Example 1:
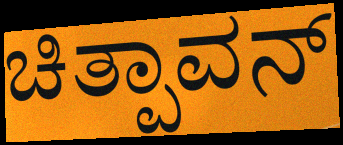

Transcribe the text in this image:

ಚಿತ್ಪಾವನ್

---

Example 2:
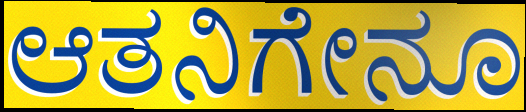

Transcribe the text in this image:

ಆತನಿಗೇನೂ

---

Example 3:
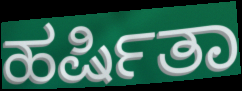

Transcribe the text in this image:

ಹರ್ಷಿತಾ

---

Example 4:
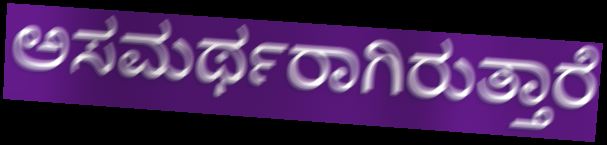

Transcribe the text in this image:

ಅಸಮರ್ಥರಾಗಿರುತ್ತಾರೆ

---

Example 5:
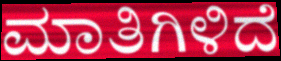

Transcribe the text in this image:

ಮಾತಿಗಿಳಿದೆ